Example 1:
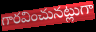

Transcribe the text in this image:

గారవించునట్లుగా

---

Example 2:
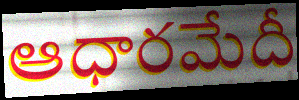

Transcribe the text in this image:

ఆధారమేదీ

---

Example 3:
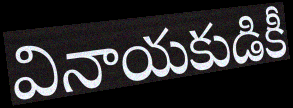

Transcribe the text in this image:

వినాయకుడికీ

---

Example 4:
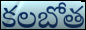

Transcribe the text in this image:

కలబోత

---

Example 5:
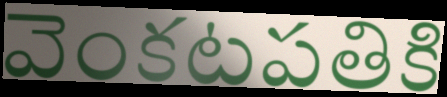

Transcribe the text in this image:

వెంకటపతికి